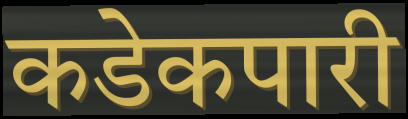
कडेकपारी